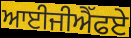
ਆਈਜੀਐੱਫਏ